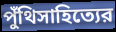
পুঁথিসাহিত্যের